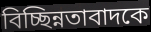
বিচ্ছিন্নতাবাদকে